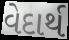
વેદાર્થ